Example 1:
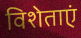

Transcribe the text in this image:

विशेताएं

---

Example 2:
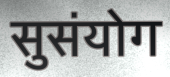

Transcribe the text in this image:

सुसंयोग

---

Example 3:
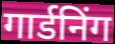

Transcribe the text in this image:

गार्डनिंग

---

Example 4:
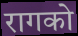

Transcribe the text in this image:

रागको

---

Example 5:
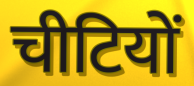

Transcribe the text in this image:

चीटियों